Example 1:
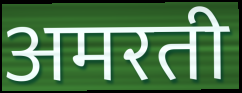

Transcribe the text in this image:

अमरती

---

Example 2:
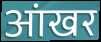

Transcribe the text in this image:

आंखर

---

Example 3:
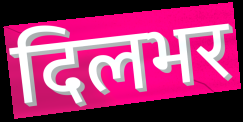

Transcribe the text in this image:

दिलभर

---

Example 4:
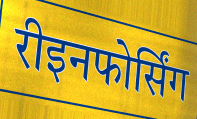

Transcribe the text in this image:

रीइनफोर्सिंग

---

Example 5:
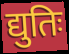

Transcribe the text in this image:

द्युतिः